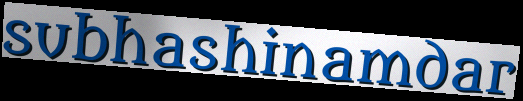
subhashinamdar